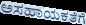
ಅಸಹಾಯಕತೆಗೆ